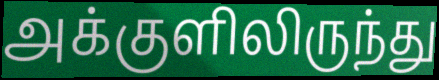
அக்குளிலிருந்து